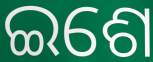
ଇଶେ